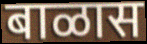
बाळास